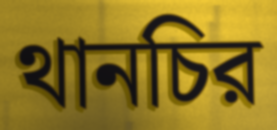
থানচির